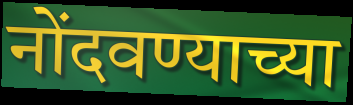
नोंदवण्याच्या